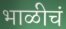
भाळीचं